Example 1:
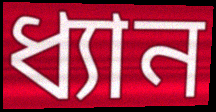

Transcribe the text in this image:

ধ্যান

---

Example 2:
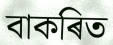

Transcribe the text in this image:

বাকৰিত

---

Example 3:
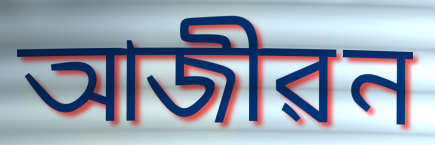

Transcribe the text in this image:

আজীৱন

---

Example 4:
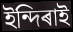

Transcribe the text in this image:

ইন্দিৰাই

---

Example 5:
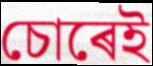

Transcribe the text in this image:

চোৰেই